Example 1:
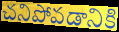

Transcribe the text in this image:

చనిపోవడానికి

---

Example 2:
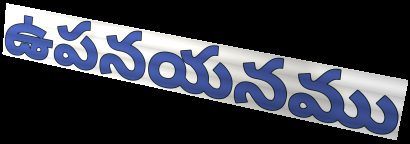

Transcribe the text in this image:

ఉపనయనము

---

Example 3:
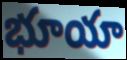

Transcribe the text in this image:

భూయా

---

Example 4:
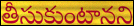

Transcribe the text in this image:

తీసుకుంటానని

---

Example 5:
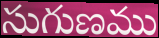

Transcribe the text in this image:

సుగుణము